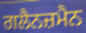
ਗਲੈਨਜ਼ਮੈਨ